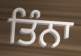
ਤਿੰਨਾ